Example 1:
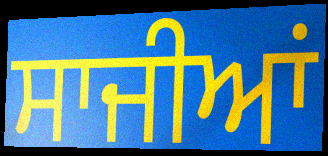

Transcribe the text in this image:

ਸਾਜੀਆਂ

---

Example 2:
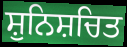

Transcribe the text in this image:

ਸ਼ੁਨਿਸ਼ਚਿਤ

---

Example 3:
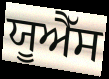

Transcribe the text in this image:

ਯੂਐੱਸ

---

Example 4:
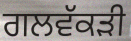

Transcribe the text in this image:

ਗਲਵੱਕਡ਼ੀ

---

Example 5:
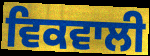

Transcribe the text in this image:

ਵਿਕਵਾਲੀ